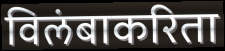
विलंबाकरिता